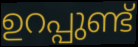
ഉറപ്പുണ്ട്